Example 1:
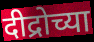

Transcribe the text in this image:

दीद्रोच्या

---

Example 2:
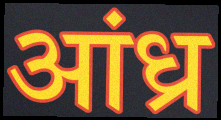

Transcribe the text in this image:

आंध्र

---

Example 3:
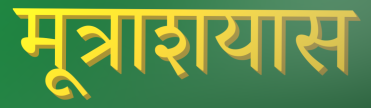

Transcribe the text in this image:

मूत्राशयास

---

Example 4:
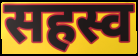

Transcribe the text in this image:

सहस्व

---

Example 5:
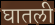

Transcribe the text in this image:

घातली